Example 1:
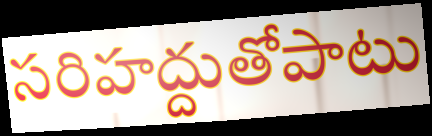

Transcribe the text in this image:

సరిహద్దుతోపాటు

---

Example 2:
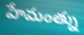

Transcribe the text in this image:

హేమంత్ను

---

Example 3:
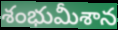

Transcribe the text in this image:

శంభుమీశాన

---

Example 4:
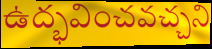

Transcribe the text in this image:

ఉద్భవించవచ్చని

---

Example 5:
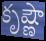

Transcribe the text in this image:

కృష్ణౌ